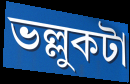
ভল্লুকটা